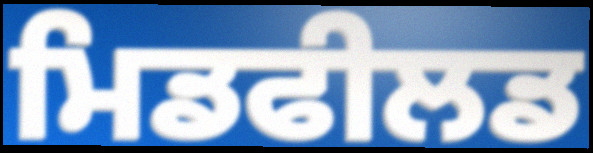
ਮਿਡਫੀਲਡ